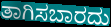
ತಾಗಿಸಬಾರದು